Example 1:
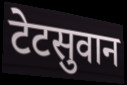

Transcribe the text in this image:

टेटसुवान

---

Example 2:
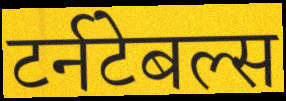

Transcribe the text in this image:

टर्नटेबल्स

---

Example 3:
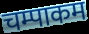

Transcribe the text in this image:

चम्पाकम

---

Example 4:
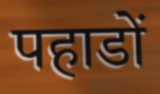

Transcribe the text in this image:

पहाडों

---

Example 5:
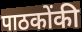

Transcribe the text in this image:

पाठकोंकी